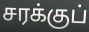
சரக்குப்